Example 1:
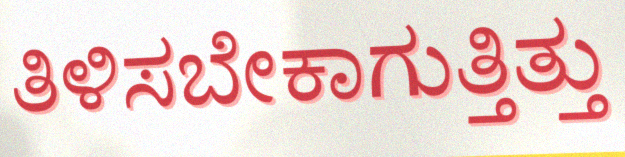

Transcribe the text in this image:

ತಿಳಿಸಬೇಕಾಗುತ್ತಿತ್ತು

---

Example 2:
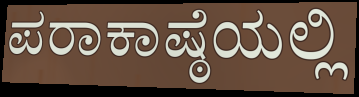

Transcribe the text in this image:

ಪರಾಕಾಷ್ಠೆಯಲ್ಲಿ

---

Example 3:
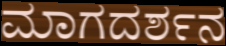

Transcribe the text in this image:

ಮಾಗದರ್ಶನ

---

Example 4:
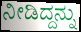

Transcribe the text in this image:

ನೀಡಿದ್ದನ್ನು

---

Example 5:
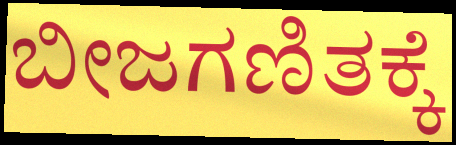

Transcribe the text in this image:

ಬೀಜಗಣಿತಕ್ಕೆ